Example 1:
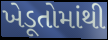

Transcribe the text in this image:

ખેડૂતોમાંથી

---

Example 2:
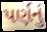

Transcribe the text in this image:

પર્ણનું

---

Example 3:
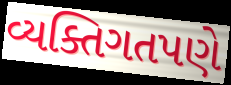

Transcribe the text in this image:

વ્યક્તિગતપણે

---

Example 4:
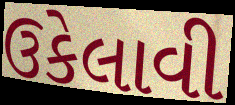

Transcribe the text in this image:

ઉકેલાવી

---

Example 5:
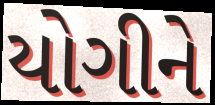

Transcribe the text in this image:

યોગીને